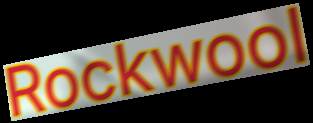
Rockwool